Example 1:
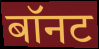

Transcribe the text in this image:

बॉनट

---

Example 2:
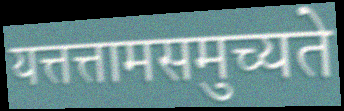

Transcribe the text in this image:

यत्तत्तामसमुच्यते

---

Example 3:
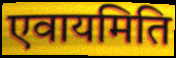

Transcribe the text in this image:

एवायमिति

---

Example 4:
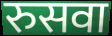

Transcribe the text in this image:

रुसवा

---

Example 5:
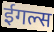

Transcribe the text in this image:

ईगल्स